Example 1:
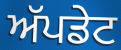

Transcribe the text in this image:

ਅੱਪਡੇਟ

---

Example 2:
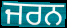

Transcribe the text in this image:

ਜਰਨ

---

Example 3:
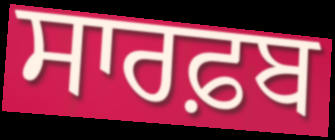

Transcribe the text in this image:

ਸਾਰਫ਼ਬ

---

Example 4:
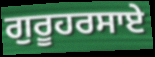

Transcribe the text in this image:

ਗੁਰੂਹਰਸਾਏ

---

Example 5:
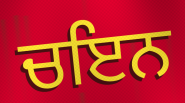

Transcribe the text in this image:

ਚਇਨ